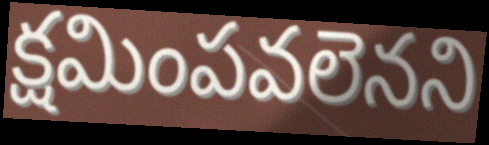
క్షమింపవలెనని